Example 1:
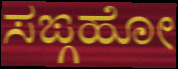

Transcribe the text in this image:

ಸಙ್ಗಹೋ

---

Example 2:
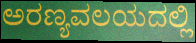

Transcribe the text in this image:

ಅರಣ್ಯವಲಯದಲ್ಲಿ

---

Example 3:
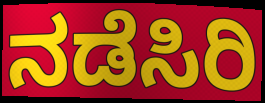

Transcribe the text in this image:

ನಡೆಸಿರಿ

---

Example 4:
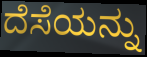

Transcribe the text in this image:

ದೆಸೆಯನ್ನು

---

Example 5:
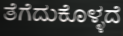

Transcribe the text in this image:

ತೆಗೆದುಕೊಳ್ಳದೆ